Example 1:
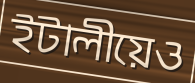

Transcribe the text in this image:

ইটালীয়েও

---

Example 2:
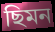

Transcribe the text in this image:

ছিমন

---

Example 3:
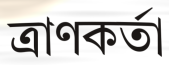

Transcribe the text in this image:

ত্ৰাণকৰ্তা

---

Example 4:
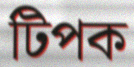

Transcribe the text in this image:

টিপক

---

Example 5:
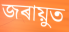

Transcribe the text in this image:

জৰায়ুত